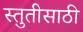
स्तुतीसाठी